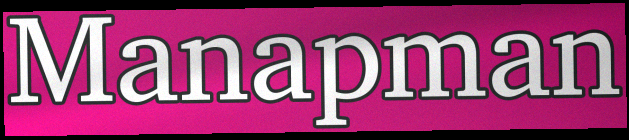
Manapman